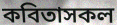
কবিতাসকল